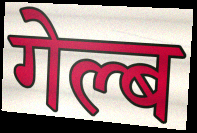
गेल्ब